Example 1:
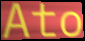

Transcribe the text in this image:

Ato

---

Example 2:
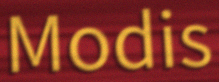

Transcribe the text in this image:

Modis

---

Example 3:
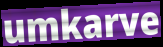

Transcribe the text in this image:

umkarve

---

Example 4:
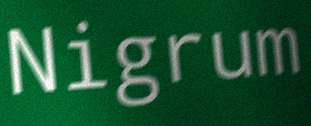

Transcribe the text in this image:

Nigrum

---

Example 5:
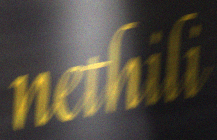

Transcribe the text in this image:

nethili